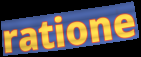
ratione